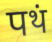
पथं